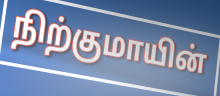
நிற்குமாயின்